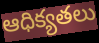
ఆధిక్యతలు